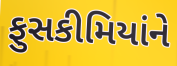
ફુસકીમિયાંને